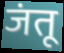
जंतू